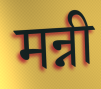
मन्नी